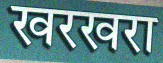
खरखरा